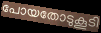
പോയതോടുകൂടി